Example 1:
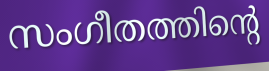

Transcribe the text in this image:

സംഗീതത്തിന്റെ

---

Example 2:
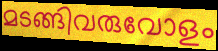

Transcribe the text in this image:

മടങ്ങിവരുവോളം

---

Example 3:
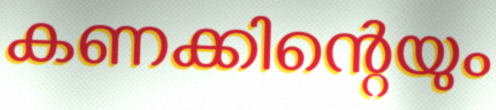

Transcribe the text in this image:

കണക്കിന്റെയും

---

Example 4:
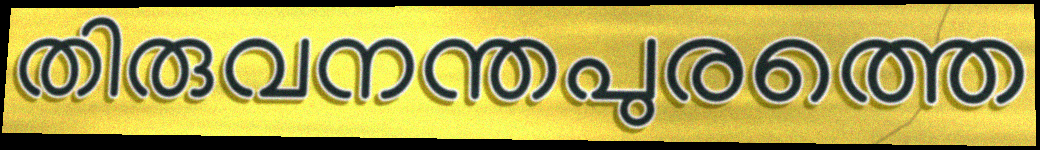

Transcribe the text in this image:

തിരുവനന്തപുരത്തെ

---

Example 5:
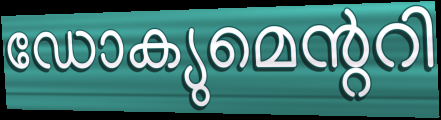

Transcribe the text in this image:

ഡോക്യുമെന്ററി